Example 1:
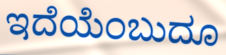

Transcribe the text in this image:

ಇದೆಯೆಂಬುದೂ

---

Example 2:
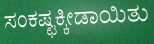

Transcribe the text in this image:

ಸಂಕಷ್ಟಕ್ಕೀಡಾಯಿತು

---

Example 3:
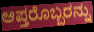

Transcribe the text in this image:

ಆಪ್ತರೊಬ್ಬರನ್ನು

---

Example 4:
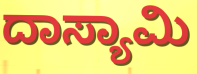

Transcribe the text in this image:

ದಾಸ್ಯಾಮಿ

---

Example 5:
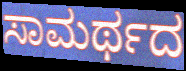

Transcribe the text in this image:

ಸಾಮರ್ಥದ